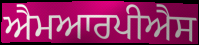
ਐਮਆਰਪੀਐਸ